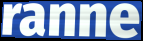
ranne